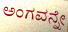
ಅಂಗವನ್ನೇ